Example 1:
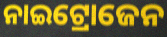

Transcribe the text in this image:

ନାଇଟ୍ରୋଜେନ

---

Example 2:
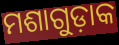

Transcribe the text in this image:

ମଶାଗୁଡ଼ାକ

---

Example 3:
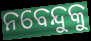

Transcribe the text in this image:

ନବେନ୍ଦୁକୁ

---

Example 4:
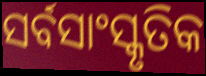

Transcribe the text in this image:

ସର୍ବସାଂସ୍କୃତିକ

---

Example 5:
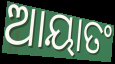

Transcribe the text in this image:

ଆୟାତଂ